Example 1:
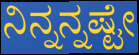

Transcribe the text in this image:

ನಿನ್ನನ್ನಷ್ಟೇ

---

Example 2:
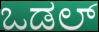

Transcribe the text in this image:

ಒಡಲ್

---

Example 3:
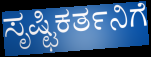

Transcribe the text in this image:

ಸೃಷ್ಟಿಕರ್ತನಿಗೆ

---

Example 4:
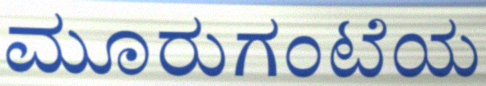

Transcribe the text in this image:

ಮೂರುಗಂಟೆಯ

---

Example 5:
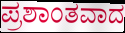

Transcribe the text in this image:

ಪ್ರಶಾಂತವಾದ